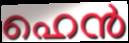
ഹെൻ